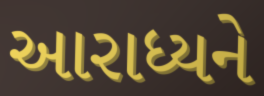
આરાધ્યને